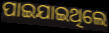
ପାଇଯାଇଥିଲେ